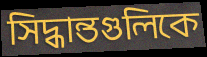
সিদ্ধান্তগুলিকে